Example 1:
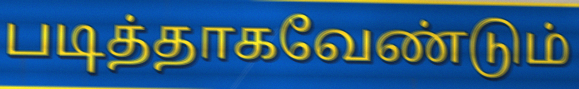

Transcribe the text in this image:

படித்தாகவேண்டும்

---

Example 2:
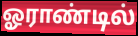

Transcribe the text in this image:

ஓராண்டில்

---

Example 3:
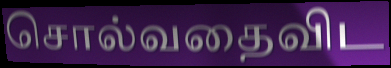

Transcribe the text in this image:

சொல்வதைவிட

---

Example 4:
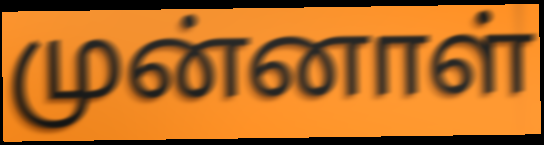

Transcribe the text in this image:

முன்னாள்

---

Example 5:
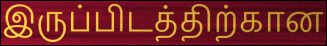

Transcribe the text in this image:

இருப்பிடத்திற்கான